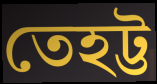
তেহট্ট